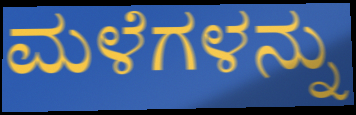
ಮಳೆಗಳನ್ನು